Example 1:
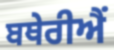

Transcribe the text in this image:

ਬਥੇਰੀਐਂ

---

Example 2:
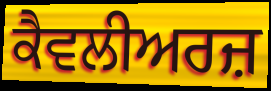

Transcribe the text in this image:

ਕੈਵਲੀਅਰਜ਼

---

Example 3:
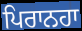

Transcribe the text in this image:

ਪਿਰਾਨਹਾ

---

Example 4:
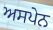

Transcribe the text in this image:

ਅਸਪੇਨ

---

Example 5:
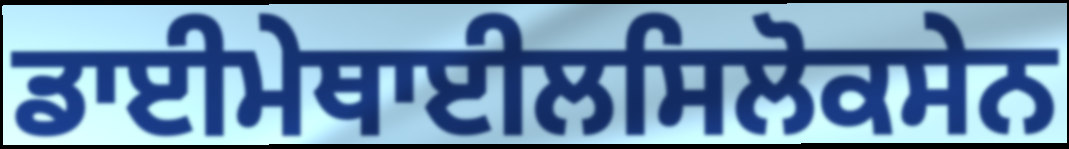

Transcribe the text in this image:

ਡਾਈਮੇਥਾਈਲਸਿਲੋਕਸੇਨ